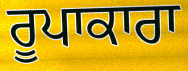
ਰੂਪਾਕਾਰਾ